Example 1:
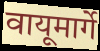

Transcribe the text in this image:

वायूमार्गे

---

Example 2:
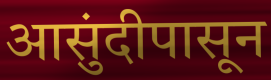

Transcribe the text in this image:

आसुंदीपासून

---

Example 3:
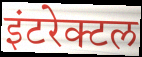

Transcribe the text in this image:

इंटरेक्टल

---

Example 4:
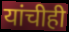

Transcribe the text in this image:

यांचीही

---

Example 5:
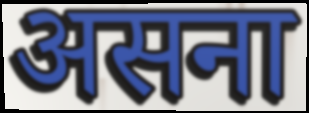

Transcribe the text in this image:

असना